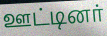
ஊட்டினர்